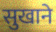
सुखाने